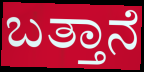
ಬತ್ತಾನೆ